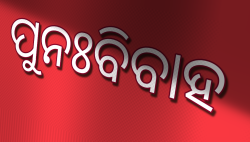
ପୁନଃବିବାହ